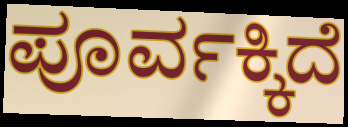
ಪೂರ್ವಕ್ಕಿದೆ